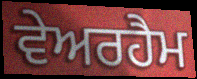
ਵੇਅਰਹੈਮ